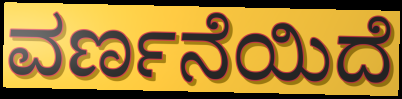
ವರ್ಣನೆಯಿದೆ